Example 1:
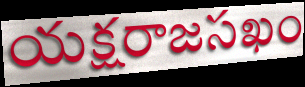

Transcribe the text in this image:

యక్షరాజసఖం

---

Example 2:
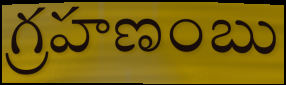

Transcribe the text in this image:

గ్రహణంబు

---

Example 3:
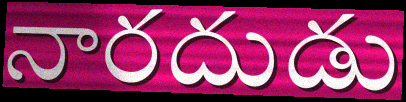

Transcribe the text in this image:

నారదుడు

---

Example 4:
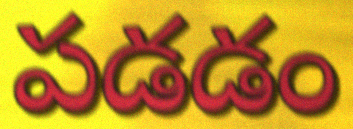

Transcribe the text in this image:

పడడం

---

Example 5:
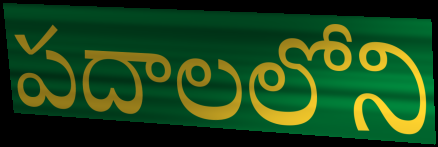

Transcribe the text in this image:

పదాలలోని